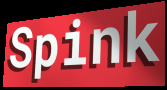
Spink